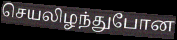
செயலிழந்துபோன